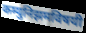
कम्युनिझमविषयी